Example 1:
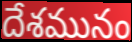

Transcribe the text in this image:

దేశమునం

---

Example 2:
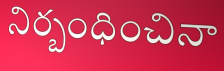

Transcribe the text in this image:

నిర్బంధించినా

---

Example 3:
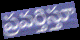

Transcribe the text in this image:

ప్రవర్తిస్తూ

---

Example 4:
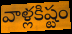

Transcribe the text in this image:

వాళ్లకిష్టం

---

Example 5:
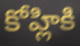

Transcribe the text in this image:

కోహ్లికి